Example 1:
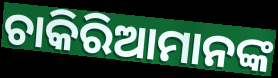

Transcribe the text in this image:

ଚାକିରିଆମାନଙ୍କ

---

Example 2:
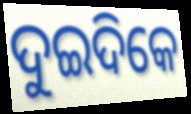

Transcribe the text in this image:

ଦୁଇଦିକେ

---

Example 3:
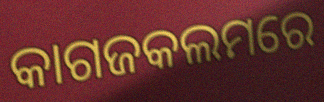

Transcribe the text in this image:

କାଗଜକଲମରେ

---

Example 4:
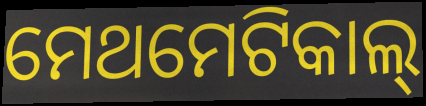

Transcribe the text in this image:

ମେଥମେଟିକାଲ୍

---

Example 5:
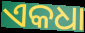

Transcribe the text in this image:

ଏକଧା